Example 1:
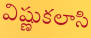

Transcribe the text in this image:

విష్ణుకలాసి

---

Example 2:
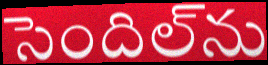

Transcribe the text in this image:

సెందిల్‌ను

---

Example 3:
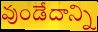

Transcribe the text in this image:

వుండేదాన్ని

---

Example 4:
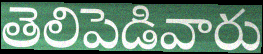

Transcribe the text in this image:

తెలిపెడివారు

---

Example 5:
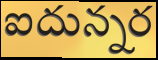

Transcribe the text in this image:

ఐదున్నర